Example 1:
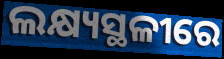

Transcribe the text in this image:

ଲକ୍ଷ୍ୟସ୍ଥଳୀରେ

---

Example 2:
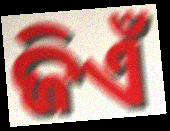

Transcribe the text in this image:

ଜିଏଁ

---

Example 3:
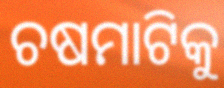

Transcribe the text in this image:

ଚଷମାଟିକୁ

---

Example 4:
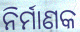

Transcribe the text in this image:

ନିର୍ମାଣକ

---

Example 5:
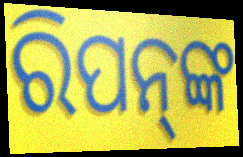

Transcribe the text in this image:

ରିପନ୍‍ଙ୍କ